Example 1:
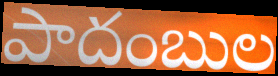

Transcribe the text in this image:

పాదంబుల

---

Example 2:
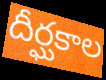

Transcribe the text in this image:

దీర్ఘకాల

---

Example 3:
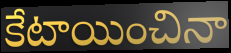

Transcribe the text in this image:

కేటాయించినా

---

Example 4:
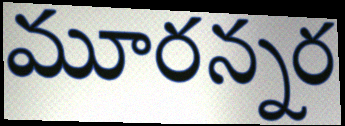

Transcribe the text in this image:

మూరన్నర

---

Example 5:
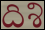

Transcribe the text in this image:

దిశి